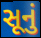
સૂનું